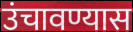
उंचावण्यास